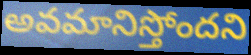
అవమానిస్తోందని